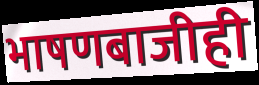
भाषणबाजीही